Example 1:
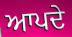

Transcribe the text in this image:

ਆਪਦੇ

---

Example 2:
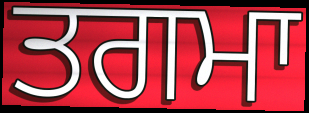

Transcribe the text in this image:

ਤਗਮਾ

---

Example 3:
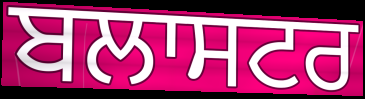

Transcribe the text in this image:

ਬਲਾਸਟਰ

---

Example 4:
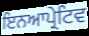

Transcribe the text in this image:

ਇਨਆਪ੍ਰੇਟਿਵ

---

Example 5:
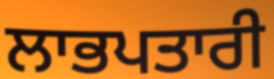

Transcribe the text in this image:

ਲਾਭਪਤਾਰੀ